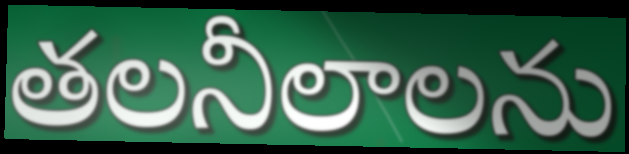
తలనీలాలను